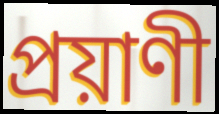
প্রয়াণী